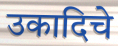
उकादिचे